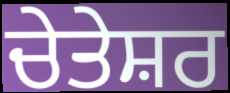
ਚੇਤੇਸ਼ਰ